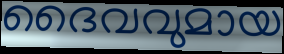
ദൈവവുമായ